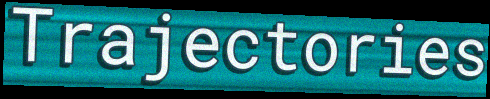
Trajectories